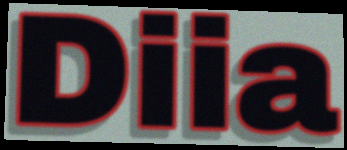
Diia